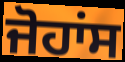
ਜੋਹਾਂਸ